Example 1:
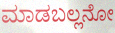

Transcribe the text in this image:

ಮಾಡಬಲ್ಲನೋ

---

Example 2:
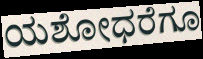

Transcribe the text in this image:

ಯಶೋಧರೆಗೂ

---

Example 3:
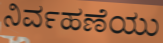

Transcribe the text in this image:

ನಿರ್ವಹಣೆಯು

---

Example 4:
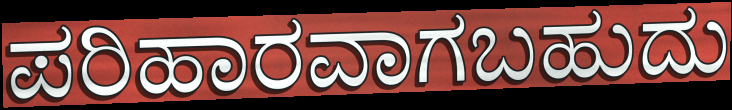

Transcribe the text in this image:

ಪರಿಹಾರವಾಗಬಹುದು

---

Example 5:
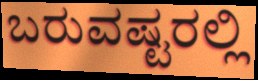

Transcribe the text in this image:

ಬರುವಷ್ಟರಲ್ಲಿ